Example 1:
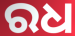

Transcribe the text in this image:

ରଧ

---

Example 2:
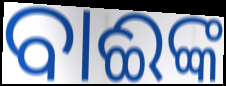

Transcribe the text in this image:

ବାଈଙ୍କ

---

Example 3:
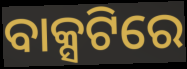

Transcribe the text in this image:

ବାକ୍ସଟିରେ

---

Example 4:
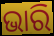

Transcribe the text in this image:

ଭାରି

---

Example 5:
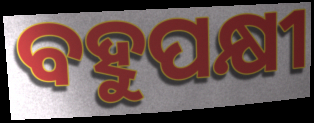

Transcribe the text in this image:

ବହୁପକ୍ଷୀ